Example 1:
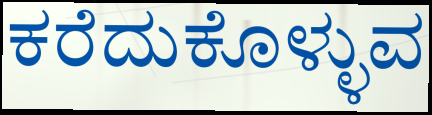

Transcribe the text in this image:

ಕರೆದುಕೊಳ್ಳುವ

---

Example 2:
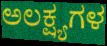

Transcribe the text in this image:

ಅಲಕ್ಷ್ಯಗಳ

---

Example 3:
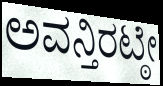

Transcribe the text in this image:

ಅವನ್ತಿರಟ್ಠೇ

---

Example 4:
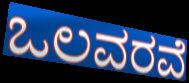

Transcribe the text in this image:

ಒಲವರವೆ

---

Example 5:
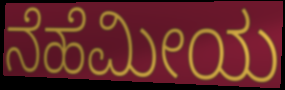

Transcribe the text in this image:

ನೆಹೆಮೀಯ